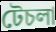
টেচলা